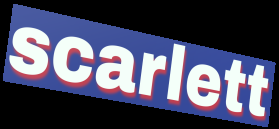
scarlett